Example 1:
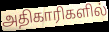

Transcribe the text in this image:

அதிகாரிகளில்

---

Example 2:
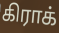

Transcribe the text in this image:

கிராக்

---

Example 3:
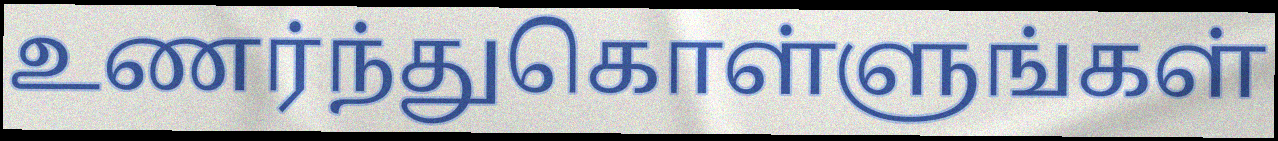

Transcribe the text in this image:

உணர்ந்துகொள்ளுங்கள்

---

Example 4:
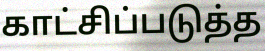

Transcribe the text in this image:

காட்சிப்படுத்த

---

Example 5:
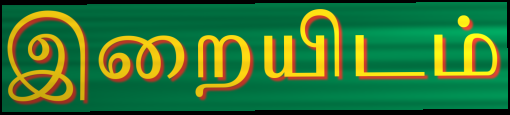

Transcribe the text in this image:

இறையிடம்